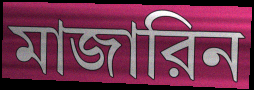
মাজারিন